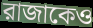
রাজাকেও